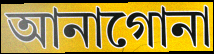
আনাগোনা